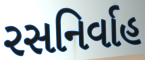
રસનિર્વાહ